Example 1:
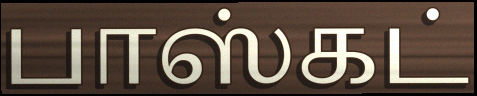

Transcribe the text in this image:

பாஸ்கட்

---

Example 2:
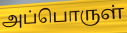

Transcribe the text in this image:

அப்பொருள்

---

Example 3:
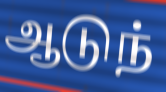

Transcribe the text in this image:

ஆடுந்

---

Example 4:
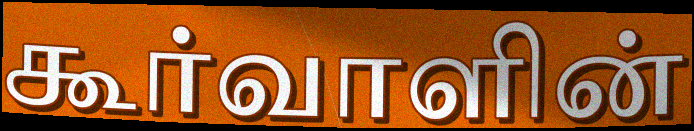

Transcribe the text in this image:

கூர்வாளின்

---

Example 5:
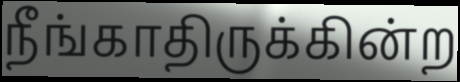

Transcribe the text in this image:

நீங்காதிருக்கின்ற